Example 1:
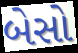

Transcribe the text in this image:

બેસો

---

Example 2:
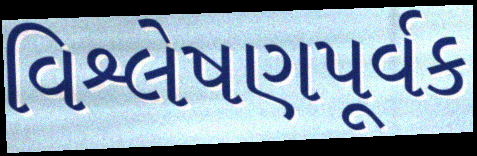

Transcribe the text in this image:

વિશ્લેષણપૂર્વક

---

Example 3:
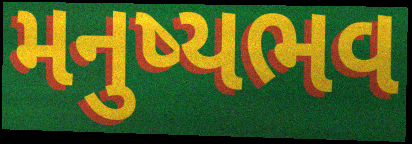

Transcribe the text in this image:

મનુષ્યભવ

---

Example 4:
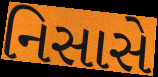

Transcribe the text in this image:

નિસાસે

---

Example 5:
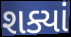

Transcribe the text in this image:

શક્યાં